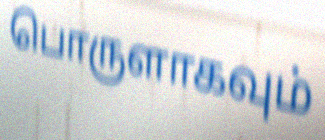
பொருளாகவும்